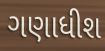
ગણાધીશ